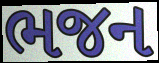
ભજન